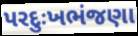
પરદુઃખભંજણા